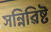
সন্নিৱিষ্ট